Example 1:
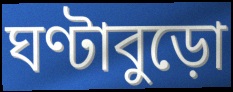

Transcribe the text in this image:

ঘণ্টাবুড়ো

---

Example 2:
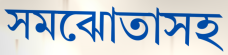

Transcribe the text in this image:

সমঝোতাসহ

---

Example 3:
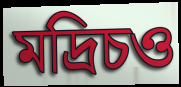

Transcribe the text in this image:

মদ্রিচও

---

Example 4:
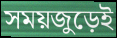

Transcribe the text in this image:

সময়জুড়েই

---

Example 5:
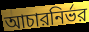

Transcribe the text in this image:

আচারনির্ভর